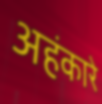
अहंकारे